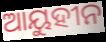
ଆୟୁହୀନ